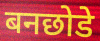
बनछोडे